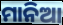
ମାନିଆ